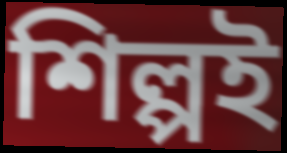
শিল্পই